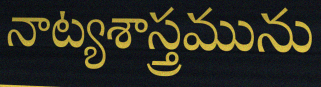
నాట్యశాస్త్రమును